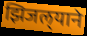
झिजल्याने